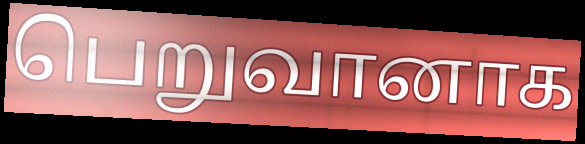
பெறுவானாக